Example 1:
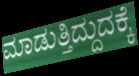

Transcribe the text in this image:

ಮಾಡುತ್ತಿದ್ದುದಕ್ಕೆ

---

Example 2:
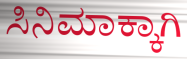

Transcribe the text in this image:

ಸಿನಿಮಾಕ್ಕಾಗಿ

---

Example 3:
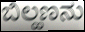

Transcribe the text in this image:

ಬಿಲ್ಹಣನು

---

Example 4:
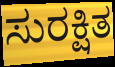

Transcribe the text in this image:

ಸುರಕ್ಷಿತ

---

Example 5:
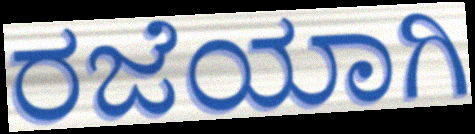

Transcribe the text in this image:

ರಜೆಯಾಗಿ